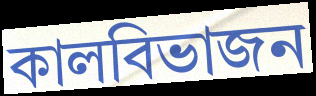
কালবিভাজন